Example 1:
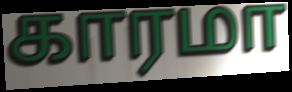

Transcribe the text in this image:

காரமா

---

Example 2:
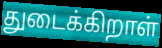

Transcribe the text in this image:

துடைக்கிறாள்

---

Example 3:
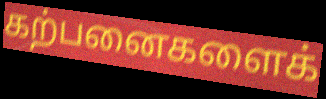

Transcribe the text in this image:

கற்பனைகளைக்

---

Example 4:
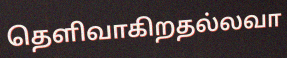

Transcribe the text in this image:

தெளிவாகிறதல்லவா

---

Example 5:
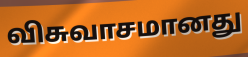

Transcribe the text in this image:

விசுவாசமானது